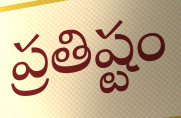
ప్రతిష్టం